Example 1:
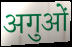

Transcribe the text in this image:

अगुओं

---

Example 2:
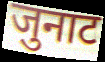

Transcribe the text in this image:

जुनाट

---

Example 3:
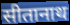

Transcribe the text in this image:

सीतानाथ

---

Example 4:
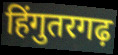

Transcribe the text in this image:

हिंगुतरगढ़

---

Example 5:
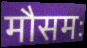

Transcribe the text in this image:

मौसमः